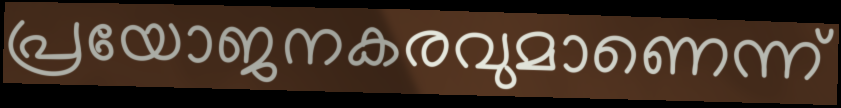
പ്രയോജനകരവുമാണെന്ന്